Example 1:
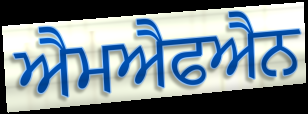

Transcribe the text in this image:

ਐਮਐਫਐਨ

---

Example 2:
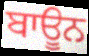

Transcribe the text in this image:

ਬਾਊਨ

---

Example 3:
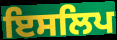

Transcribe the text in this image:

ਇਸਲਿਪ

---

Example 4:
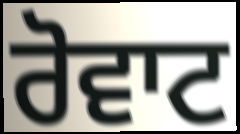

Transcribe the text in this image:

ਰੋਵਾਟ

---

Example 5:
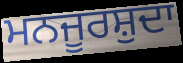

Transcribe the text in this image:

ਮਨਜੂਰਸ਼ੁਦਾ